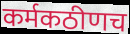
कर्मकठीणच